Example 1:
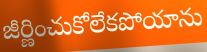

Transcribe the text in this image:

జీర్ణించుకోలేకపోయాను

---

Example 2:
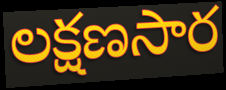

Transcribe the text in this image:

లక్షణసార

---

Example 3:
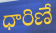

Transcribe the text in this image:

ధారిణే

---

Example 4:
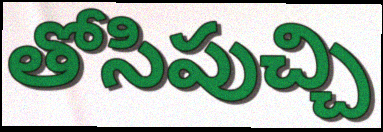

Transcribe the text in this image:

తోసిపుచ్చి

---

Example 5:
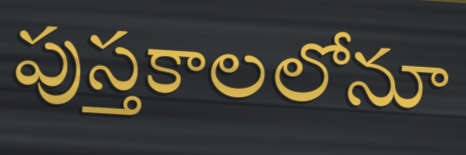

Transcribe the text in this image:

పుస్తకాలలోనూ